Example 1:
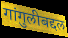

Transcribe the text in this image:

गांगुलीबद्दल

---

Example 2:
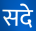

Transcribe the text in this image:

सदे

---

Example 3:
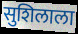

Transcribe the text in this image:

सुशिलाला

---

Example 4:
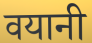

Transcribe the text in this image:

वयानी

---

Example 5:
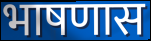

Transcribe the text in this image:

भाषणास